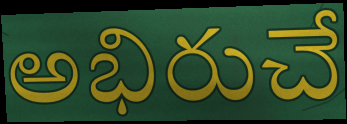
అభిరుచే